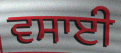
ਵਸਾਈ